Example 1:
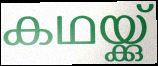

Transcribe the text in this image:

കഥയ്ക്കു്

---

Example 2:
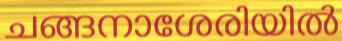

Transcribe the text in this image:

ചങ്ങനാശേരിയിൽ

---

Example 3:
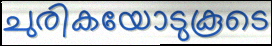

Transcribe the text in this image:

ചുരികയോടുകൂടെ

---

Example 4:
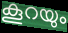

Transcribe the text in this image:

കൂറയും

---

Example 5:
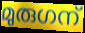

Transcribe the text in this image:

മുരുഗന്